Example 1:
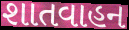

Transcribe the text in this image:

શાતવાહન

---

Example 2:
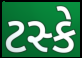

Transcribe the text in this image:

ટસ્કે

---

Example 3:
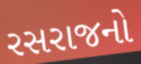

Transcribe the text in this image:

રસરાજનો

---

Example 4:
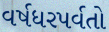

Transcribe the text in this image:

વર્ષધરપર્વતો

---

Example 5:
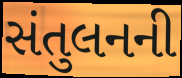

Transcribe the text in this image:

સંતુલનની